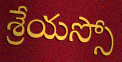
శ్రేయస్సో